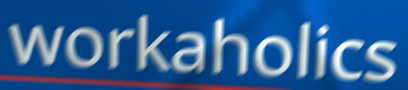
workaholics